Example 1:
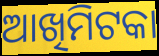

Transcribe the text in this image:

ଆଖିମିଟକା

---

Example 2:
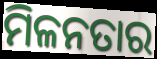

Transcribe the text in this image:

ମିଳନତାର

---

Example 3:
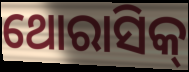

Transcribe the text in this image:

ଥୋରାସିକ୍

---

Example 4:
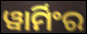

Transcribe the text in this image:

ୱାର୍ମିଂର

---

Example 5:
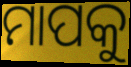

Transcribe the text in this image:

ମାପକୁ